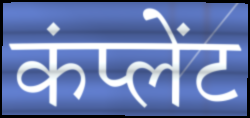
कंप्लेंट